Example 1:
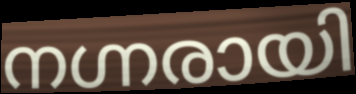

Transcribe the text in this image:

നഗ്നരായി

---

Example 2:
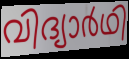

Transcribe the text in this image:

വിദ്യാർഥി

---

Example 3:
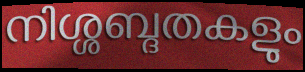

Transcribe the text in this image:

നിശ്ശബ്ദതകളും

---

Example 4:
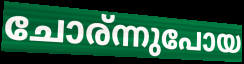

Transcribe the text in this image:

ചോര്ന്നുപോയ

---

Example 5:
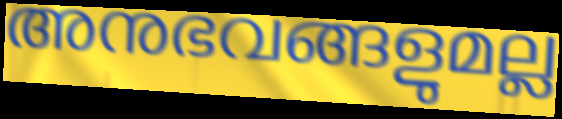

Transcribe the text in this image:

അനുഭവങ്ങളുമല്ല